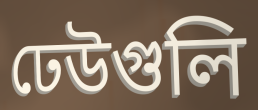
ঢেউগুলি